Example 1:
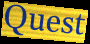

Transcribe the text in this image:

Quest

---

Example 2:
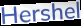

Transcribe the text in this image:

Hershel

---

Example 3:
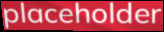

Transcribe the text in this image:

placeholder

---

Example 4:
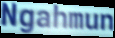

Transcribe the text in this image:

Ngahmun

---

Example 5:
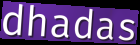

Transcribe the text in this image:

dhadas